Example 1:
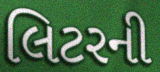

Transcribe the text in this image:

લિટરની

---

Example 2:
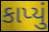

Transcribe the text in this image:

કાપ્યું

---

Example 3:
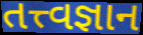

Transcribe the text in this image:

તત્ત્વજ્ઞાન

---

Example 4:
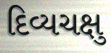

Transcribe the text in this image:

દિવ્યચક્ષુ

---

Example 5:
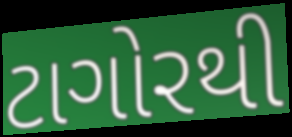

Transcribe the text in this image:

ટાગોરથી